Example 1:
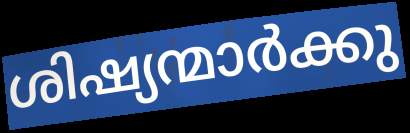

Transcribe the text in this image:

ശിഷ്യന്മാർക്കു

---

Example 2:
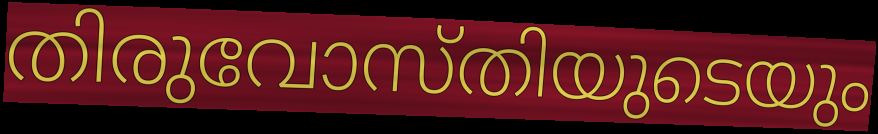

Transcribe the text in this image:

തിരുവോസ്തിയുടെയും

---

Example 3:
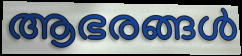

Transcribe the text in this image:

ആഭരങ്ങൾ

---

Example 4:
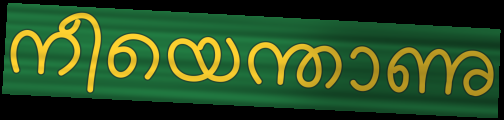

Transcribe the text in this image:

നീയെന്താണു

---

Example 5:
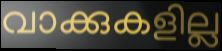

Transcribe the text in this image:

വാക്കുകളില്ല